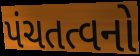
પંચતત્વનો